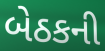
બેઠકની